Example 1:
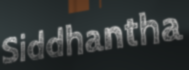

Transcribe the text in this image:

Siddhantha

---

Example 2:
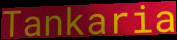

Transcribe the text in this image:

Tankaria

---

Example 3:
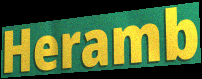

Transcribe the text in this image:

Heramb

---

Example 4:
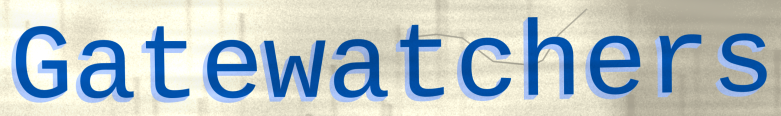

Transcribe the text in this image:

Gatewatchers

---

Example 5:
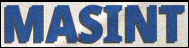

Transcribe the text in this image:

MASINT